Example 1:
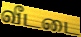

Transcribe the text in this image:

வீடடை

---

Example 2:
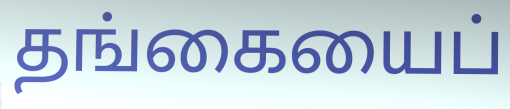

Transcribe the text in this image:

தங்கையைப்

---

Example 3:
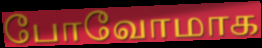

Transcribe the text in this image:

போவோமாக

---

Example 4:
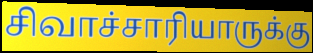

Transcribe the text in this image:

சிவாச்சாரியாருக்கு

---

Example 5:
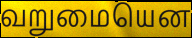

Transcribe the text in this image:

வறுமையென